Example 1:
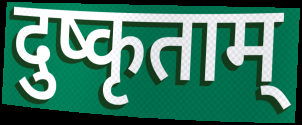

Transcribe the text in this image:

दुष्कृताम्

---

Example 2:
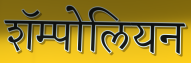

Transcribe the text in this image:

शॅम्पोलियन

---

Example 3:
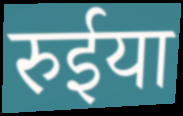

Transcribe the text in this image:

रुईया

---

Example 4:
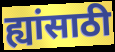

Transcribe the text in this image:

ह्यांसाठी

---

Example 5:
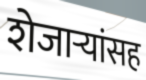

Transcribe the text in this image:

शेजाऱ्यांसह